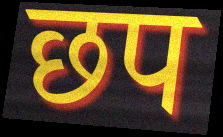
छप